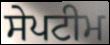
ਸੇਪਟੀਮ